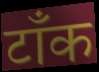
टॉंक